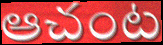
ఆచంట